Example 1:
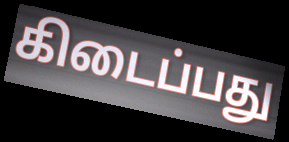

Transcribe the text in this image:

கிடைப்பது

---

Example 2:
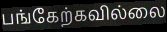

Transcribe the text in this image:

பங்கேற்கவில்லை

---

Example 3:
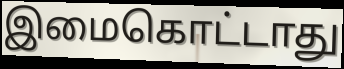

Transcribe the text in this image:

இமைகொட்டாது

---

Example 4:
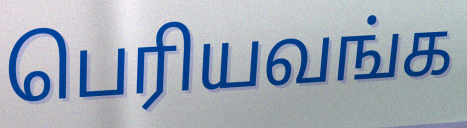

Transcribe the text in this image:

பெரியவங்க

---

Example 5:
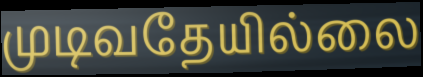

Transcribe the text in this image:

முடிவதேயில்லை